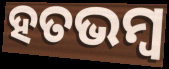
ହତଭମ୍ୱ